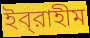
ইব্‌রাহীম